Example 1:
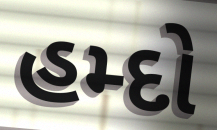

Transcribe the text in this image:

હમ્દો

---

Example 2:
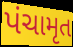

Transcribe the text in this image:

પંચામૃત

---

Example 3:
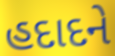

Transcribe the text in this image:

હદાદને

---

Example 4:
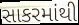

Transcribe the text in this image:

સાકરમાંથી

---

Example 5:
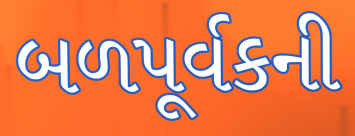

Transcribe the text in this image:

બળપૂર્વકની